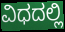
ವಿಧದಲ್ಲಿ